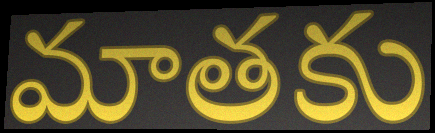
మాతకు